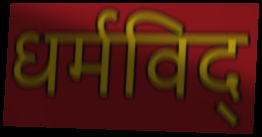
धर्मविद्